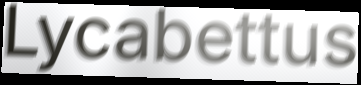
Lycabettus